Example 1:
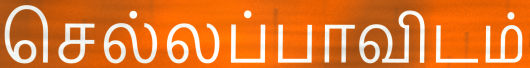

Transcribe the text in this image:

செல்லப்பாவிடம்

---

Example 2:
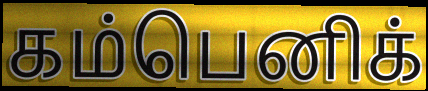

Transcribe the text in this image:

கம்பெனிக்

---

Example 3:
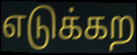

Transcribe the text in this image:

எடுக்கற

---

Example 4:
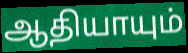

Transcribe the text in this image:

ஆதியாயும்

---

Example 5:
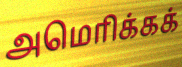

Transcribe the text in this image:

அமெரிக்கக்